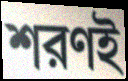
শরণই